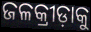
ଜଳକ୍ରୀଡ଼ାକୁ